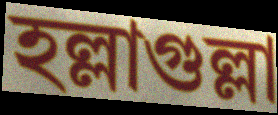
হল্লাগুল্লা